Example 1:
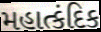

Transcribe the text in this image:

મહાત્કંદિક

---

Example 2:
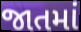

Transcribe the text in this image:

જાતમાં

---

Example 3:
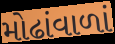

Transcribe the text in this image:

મોઢાંવાળાં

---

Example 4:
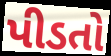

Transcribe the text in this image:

પીડતો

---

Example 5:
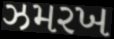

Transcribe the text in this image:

ઝમરખ